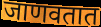
जाणवतात